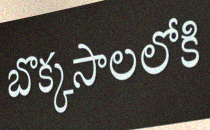
బొక్కసాలలోకి